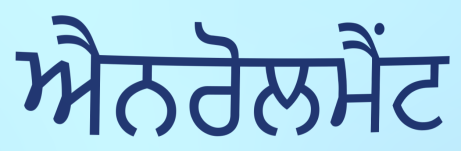
ਐਨਰੋਲਮੈਂਟ